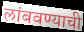
लांबवण्याची